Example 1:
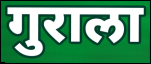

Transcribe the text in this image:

गुराला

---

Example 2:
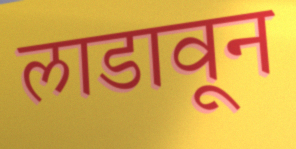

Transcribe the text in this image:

लाडावून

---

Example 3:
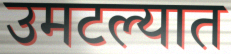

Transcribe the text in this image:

उमटल्यात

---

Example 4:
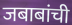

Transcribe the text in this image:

जबाबांची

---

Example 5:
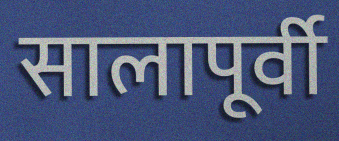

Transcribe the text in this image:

सालापूर्वी